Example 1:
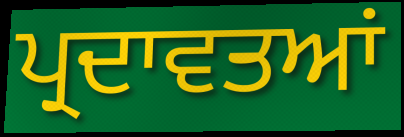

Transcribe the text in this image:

ਪ੍ਰਦਾਵਤਆਂ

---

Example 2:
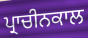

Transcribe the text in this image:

ਪ੍ਰਾਚੀਨਕਾਲ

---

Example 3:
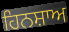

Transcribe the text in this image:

ਹਿਨਸ਼ਾਅ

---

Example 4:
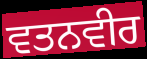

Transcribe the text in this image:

ਵਤਨਵੀਰ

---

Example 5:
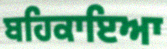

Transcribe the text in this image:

ਬਹਿਕਾਇਆ